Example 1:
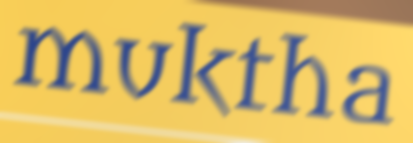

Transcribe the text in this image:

muktha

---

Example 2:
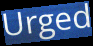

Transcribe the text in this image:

Urged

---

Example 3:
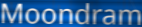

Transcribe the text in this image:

Moondram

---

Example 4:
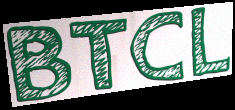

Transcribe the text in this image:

BTCL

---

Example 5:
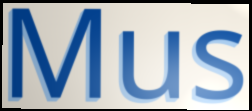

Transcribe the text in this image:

Mus